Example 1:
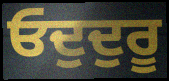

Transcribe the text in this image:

ਓਦੁਦੁਰੂ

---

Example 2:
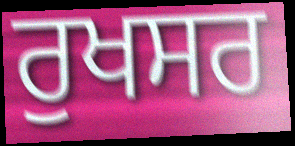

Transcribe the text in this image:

ਰੁਖਸਰ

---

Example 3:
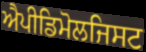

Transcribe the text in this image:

ਐਪੀਡਿਮੋਲਜਿਸਟ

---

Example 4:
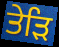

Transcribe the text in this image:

ਤੇੜਿ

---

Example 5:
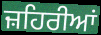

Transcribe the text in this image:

ਜ਼ਹਿਰੀਆਂ